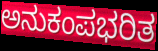
ಅನುಕಂಪಭರಿತ